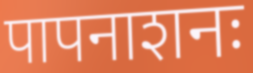
पापनाशनः